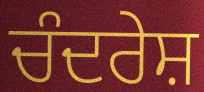
ਚੰਦਰੇਸ਼